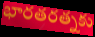
భారతరత్నకు